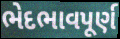
ભેદભાવપૂર્ણ